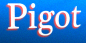
Pigot